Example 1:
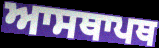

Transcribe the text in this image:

ਆਸਥਾਪਥ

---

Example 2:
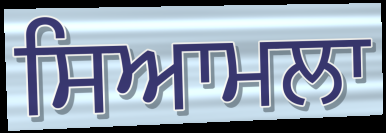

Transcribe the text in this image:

ਸਿਆਮਲਾ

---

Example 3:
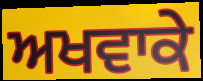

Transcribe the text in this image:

ਅਖਵਾਕੇ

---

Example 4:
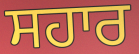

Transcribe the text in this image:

ਸਹਾਰ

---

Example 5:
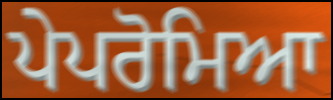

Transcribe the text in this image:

ਪੇਪਰੋਮਿਆ